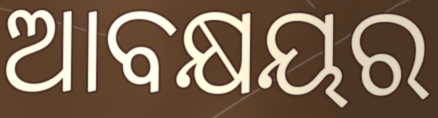
ଆବକ୍ଷୟର